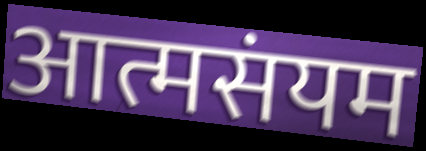
आत्मसंयम